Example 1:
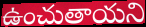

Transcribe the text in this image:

ఉంచుతాయని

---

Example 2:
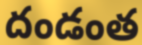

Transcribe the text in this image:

దండంత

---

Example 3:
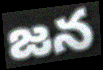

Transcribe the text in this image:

జన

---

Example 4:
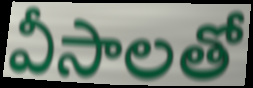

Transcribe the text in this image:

వీసాలతో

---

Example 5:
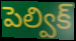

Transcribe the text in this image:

పెల్విక్